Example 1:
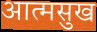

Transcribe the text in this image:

आत्मसुख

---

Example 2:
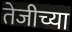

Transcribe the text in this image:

तेजीच्या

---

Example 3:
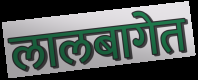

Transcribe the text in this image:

लालबागेत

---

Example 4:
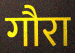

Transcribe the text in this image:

गौरा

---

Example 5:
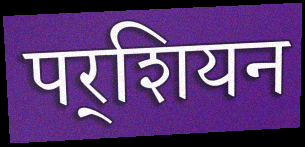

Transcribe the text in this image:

पर्शियन